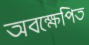
অবক্ষেপিত